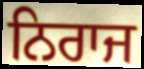
ਨਿਰਾਜ